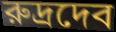
রুদ্রদেব